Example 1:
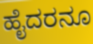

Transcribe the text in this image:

ಹೈದರನೂ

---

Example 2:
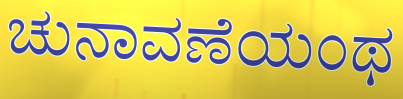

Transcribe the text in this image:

ಚುನಾವಣೆಯಂಥ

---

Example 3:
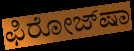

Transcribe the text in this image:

ಫಿರೋಜ್‌ಷಾ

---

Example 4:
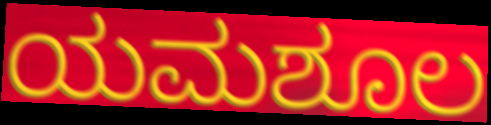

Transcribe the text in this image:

ಯಮಶೂಲ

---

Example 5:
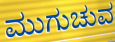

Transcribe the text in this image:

ಮುಗುಚುವ